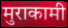
मुराकामी